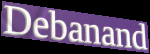
Debanand